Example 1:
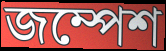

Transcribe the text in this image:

জম্পেশ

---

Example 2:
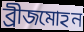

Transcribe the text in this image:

ব্রীজমোহন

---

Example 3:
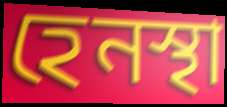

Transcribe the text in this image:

হেনস্থা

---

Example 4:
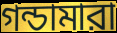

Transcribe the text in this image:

গন্ডামারা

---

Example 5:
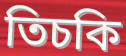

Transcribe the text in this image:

তিচকি